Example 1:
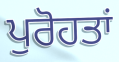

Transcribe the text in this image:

ਪੁਰੋਹਤਾਂ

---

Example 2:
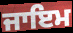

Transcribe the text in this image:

ਜਾਇਮ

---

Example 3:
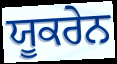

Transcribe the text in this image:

ਯੂਕਰੇਨ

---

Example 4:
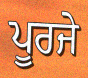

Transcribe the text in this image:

ਪੂਰਜੇ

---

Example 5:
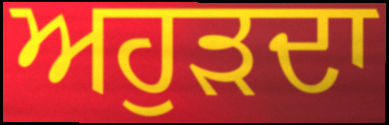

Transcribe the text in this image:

ਅਹੁੜਦਾ